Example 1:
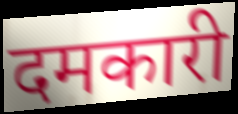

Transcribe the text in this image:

दमकारी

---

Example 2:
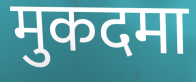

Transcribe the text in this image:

मुकदमा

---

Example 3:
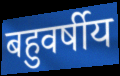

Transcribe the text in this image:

बहुवर्षीय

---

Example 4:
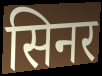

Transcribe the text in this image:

सिनर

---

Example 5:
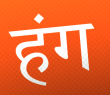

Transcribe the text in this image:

हंग